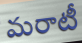
మరాటీ